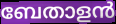
ബേതാളൻ